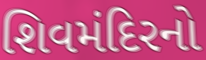
શિવમંદિરનો